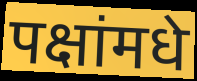
पक्षांमधे